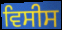
ਵਿਸੀਸ